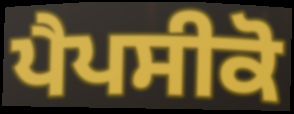
ਪੈਪਸੀਕੋ